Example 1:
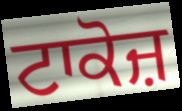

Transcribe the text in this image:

ਟਾਕੋਜ਼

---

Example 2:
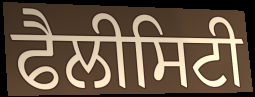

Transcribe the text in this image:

ਫੈਲੀਸਿਟੀ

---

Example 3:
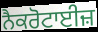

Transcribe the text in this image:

ਨੈਕਰੋਟਾਈਜ਼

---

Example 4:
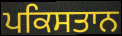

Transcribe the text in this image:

ਪਕਿਸਤਾਨ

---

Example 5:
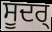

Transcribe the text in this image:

ਸੂਦਰ੍